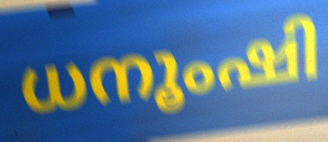
ധനൂംഷി